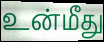
உன்மீது